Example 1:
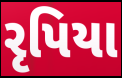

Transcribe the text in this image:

રૃપિયા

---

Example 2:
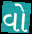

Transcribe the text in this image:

વો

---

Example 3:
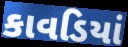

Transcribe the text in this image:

કાવડિયાં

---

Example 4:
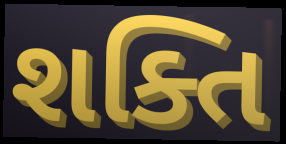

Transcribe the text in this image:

શક્તિ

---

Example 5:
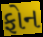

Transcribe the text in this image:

ફોન